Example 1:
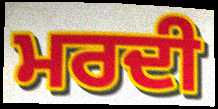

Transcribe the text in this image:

ਮਰਦੀ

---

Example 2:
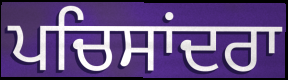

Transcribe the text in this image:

ਪਚਿਸਾਂਦਰਾ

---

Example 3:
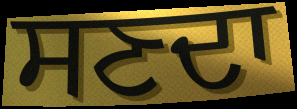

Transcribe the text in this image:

ਸਣਦਾ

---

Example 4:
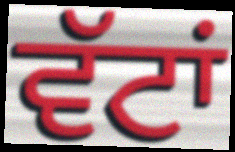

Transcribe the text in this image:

ਵੱਟਾਂ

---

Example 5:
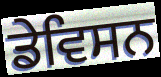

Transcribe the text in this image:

ਡੇਵਿਸਨ